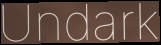
Undark